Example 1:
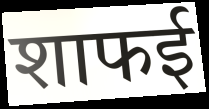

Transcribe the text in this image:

शाफई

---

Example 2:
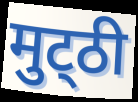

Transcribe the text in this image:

मुट्‌ठी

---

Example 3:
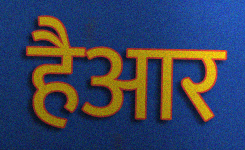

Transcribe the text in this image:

हैआर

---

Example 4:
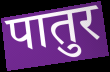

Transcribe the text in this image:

पातुर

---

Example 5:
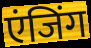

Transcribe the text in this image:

एंजिंग